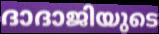
ദാദാജിയുടെ